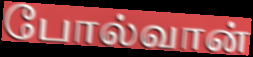
போல்வான்